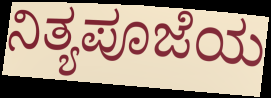
ನಿತ್ಯಪೂಜೆಯ